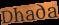
Dhada